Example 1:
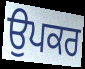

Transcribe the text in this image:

ਉਪਕਰ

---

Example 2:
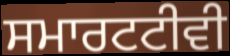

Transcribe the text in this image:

ਸਮਾਰਟਟੀਵੀ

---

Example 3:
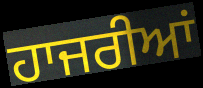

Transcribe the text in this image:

ਹਾਜਰੀਆਂ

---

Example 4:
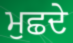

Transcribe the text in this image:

ਮੁਛਦੇ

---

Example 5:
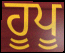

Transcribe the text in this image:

ਹੂਪੂ